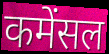
कमेंसल